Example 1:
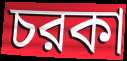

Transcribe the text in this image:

চরকা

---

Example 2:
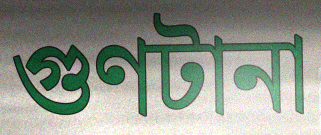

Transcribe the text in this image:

গুণটানা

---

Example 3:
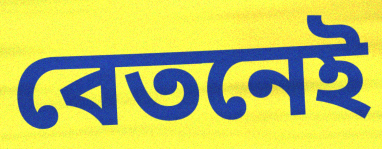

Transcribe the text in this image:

বেতনেই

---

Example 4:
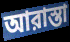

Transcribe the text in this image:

আরাস্তা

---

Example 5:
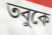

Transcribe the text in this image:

তবুকে